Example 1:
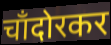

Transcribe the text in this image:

चाँदोरकर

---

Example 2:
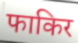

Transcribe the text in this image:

फाकिर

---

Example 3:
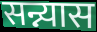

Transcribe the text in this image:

सन्न्यास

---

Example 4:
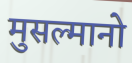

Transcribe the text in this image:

मुसल्मानो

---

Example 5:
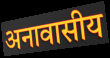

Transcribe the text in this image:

अनावासीय